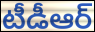
టీడీఆర్